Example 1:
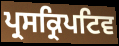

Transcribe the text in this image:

ਪ੍ਰਸਕ੍ਰਿਪਟਿਵ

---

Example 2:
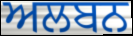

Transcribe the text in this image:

ਅਲਬਨ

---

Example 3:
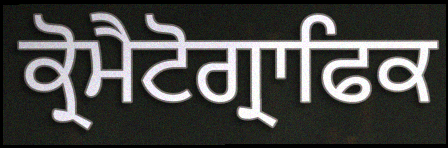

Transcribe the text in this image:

ਕ੍ਰੋਮੈਟੋਗ੍ਰਾਫਿਕ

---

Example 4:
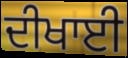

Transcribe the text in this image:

ਦੀਖਾਈ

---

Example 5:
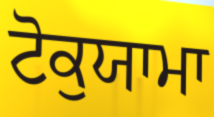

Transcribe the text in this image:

ਟੋਕੁਯਾਮਾ